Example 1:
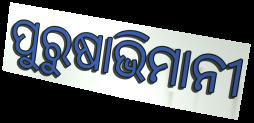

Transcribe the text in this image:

ପୁରୁଷାଭିମାନୀ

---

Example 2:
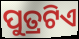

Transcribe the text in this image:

ପୁତ୍ରଟିଏ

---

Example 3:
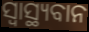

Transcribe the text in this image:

ସ୍ୱାସ୍ଥ୍ୟବାନ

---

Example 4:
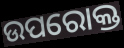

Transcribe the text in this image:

ଉପରୋକ୍ତ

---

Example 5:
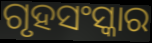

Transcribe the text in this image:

ଗୃହସଂସ୍କାର